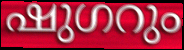
ഷുഗറും